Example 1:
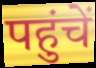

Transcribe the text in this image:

पहुंचें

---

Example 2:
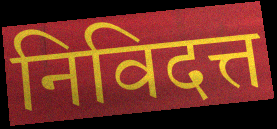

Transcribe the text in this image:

निविदत्त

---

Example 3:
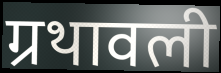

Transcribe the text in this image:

ग्रथावली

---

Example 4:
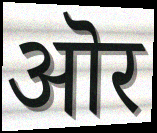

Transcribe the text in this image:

ऒर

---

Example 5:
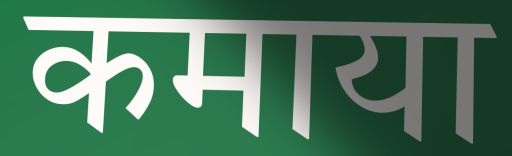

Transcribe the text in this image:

कमाया